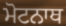
ਮੋਟਨਾਥ